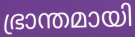
ഭ്രാന്തമായി